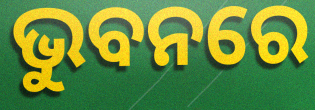
ଭୁବନରେ